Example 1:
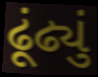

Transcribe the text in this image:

ઢૂંઢ્યું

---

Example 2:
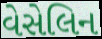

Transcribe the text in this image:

વેસેલિન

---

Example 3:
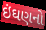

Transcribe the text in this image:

ઇંઘણનો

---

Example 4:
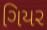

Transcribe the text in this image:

ગિયર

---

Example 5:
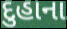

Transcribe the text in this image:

દુહાના